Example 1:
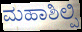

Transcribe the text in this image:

ಮಹಾಶಿಲ್ಪಿ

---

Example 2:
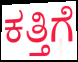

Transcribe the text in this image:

ಕತ್ತಿಗೆ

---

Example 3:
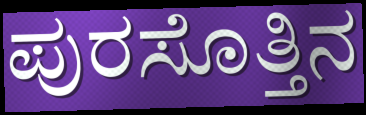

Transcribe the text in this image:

ಪುರಸೊತ್ತಿನ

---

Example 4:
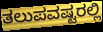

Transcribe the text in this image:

ತಲುಪವಷ್ಟರಲ್ಲಿ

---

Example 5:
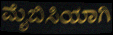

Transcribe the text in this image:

ಮೈಬಿಸಿಯಾಗಿ